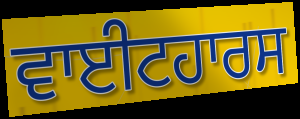
ਵਾਈਟਹਾਰਸ